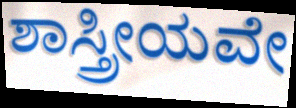
ಶಾಸ್ತ್ರೀಯವೇ